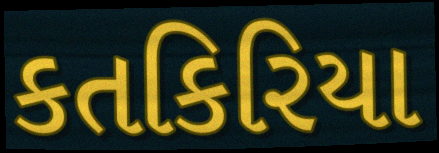
કતકિરિયા